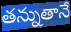
తన్నుతానే